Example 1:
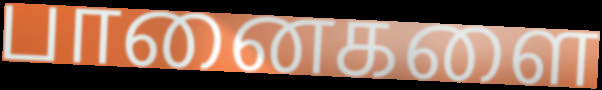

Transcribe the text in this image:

பானைகளை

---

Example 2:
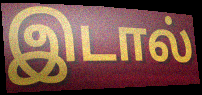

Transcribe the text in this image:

இடால்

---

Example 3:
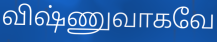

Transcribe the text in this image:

விஷ்ணுவாகவே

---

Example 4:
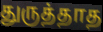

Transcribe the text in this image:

துருத்தாத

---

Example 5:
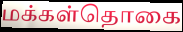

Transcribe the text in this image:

மக்கள்தொகை